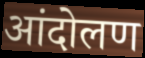
आंदोलण